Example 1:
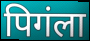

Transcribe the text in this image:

पिगंला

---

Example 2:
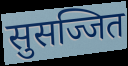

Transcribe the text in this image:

सुसज्जित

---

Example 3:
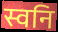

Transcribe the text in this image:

स्वनि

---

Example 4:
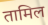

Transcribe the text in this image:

तामिल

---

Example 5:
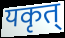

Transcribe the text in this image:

यकृत्